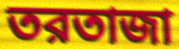
তরতাজা